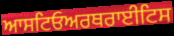
ਆਸਟਿਓਅਰਥਰਾਈਟਿਸ